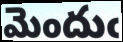
మెందుఁ